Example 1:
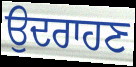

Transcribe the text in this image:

ਉਦਰਾਹਣ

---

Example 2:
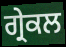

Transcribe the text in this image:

ਗ੍ਰੇਕਲ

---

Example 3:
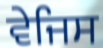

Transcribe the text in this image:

ਵੇਜਿਸ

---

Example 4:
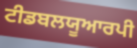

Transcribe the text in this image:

ਟੀਡਬਲਯੂਆਰਪੀ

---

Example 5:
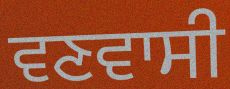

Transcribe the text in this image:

ਵਣਵਾਸੀ